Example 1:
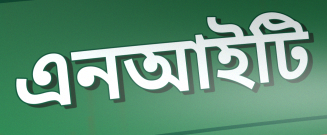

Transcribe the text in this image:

এনআইটি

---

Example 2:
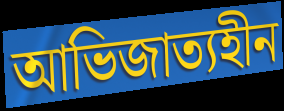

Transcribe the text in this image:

আভিজাত্যহীন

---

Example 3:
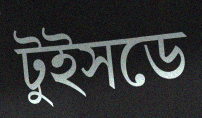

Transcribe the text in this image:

টুইসডে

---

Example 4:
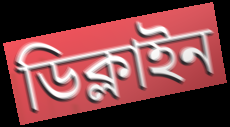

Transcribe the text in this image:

ডিক্লাইন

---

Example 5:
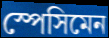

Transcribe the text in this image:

স্পেসিমেন